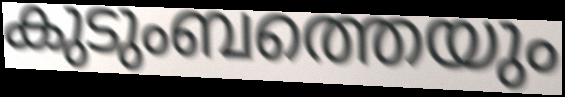
കുടുംബത്തെയും